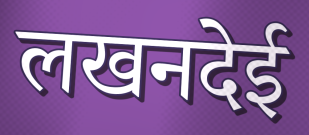
लखनदेई